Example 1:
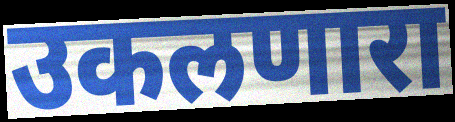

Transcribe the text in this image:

उकलणारा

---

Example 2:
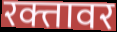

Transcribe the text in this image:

रक्तावर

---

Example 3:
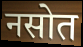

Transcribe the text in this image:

नसोत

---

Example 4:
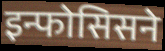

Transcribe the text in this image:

इन्फोसिसने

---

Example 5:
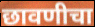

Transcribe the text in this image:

छावणीचा